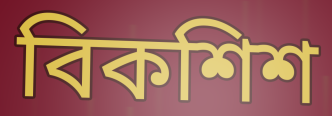
বিকশিশ